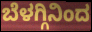
ಬೆಳಗ್ಗಿನಿಂದ